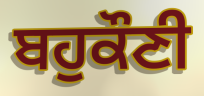
ਬਹੁਕੌਣੀ